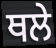
ਥਲੇ